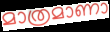
മാത്രമാണാ